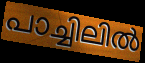
പാച്ചിലിൽ